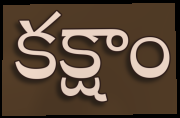
కక్షాం